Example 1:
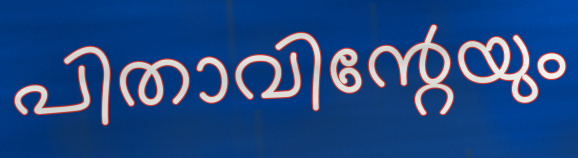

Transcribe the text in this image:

പിതാവിന്റേയും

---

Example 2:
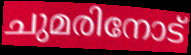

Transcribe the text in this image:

ചുമരിനോട്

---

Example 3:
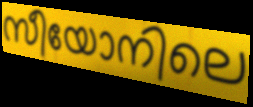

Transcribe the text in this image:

സീയോനിലെ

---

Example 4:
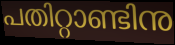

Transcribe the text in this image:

പതിറ്റാണ്ടിനു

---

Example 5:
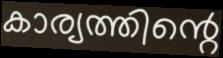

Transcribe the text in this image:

കാര്യത്തിന്റെ